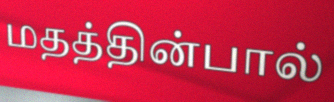
மதத்தின்பால்